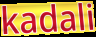
kadali